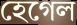
হেগেল